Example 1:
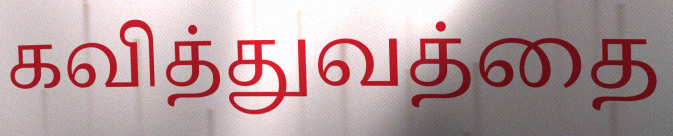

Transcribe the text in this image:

கவித்துவத்தை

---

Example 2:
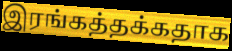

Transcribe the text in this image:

இரங்கத்தக்கதாக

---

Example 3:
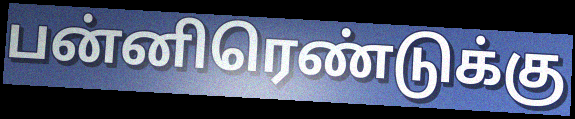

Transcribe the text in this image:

பன்னிரெண்டுக்கு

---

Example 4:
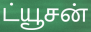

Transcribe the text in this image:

ட்யூசன்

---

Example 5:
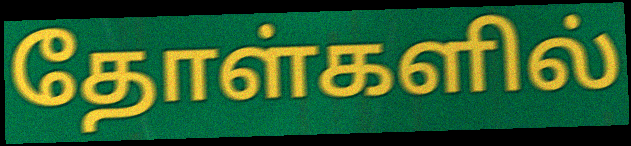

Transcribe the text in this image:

தோள்களில்